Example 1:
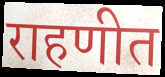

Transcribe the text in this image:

राहणीत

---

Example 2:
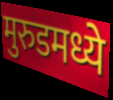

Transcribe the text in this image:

मुरुडमध्ये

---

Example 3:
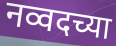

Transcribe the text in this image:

नव्वदच्या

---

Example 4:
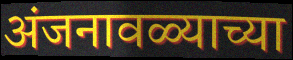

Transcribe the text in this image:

अंजनावळ्याच्या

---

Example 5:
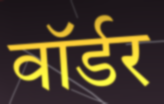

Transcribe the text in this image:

वॉर्डर